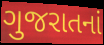
ગુજરાતનાં